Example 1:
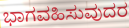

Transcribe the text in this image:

ಭಾಗವಹಿಸುವುದರ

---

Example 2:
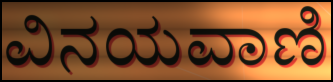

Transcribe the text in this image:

ವಿನಯವಾಣಿ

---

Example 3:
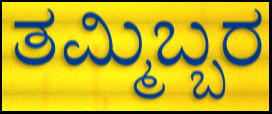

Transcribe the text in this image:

ತಮ್ಮಿಬ್ಬರ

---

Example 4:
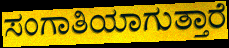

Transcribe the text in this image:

ಸಂಗಾತಿಯಾಗುತ್ತಾರೆ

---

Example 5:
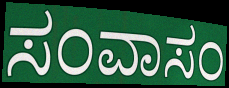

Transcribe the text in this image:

ಸಂವಾಸಂ